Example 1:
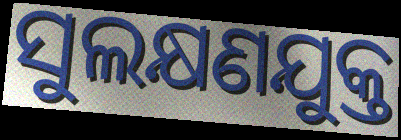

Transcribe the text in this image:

ସୁଲକ୍ଷଣଯୁକ୍ତ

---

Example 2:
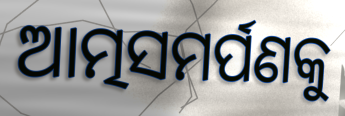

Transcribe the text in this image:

ଆତ୍ମସମର୍ପଣକୁ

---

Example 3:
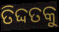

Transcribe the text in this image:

ତିଦ୍ଦତକୁ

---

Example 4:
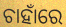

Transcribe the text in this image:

ଚାହାଁରେ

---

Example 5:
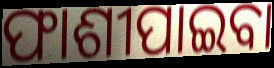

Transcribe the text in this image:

ଫାଶୀପାଇବା